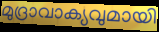
മുദ്രാവാക്യവുമായി